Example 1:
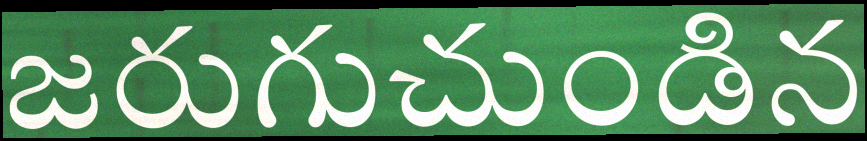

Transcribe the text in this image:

జరుగుచుండిన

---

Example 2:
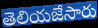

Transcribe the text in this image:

తెలియజేసారు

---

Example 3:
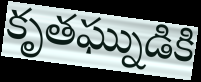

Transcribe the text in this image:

కృతఘ్నుడికి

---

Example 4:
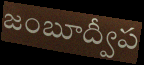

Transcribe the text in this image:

జంబూద్వీప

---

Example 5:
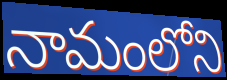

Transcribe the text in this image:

నామంలోని